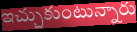
ఇచ్చుకుంటున్నారు